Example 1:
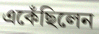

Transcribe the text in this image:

একেঁছিলেন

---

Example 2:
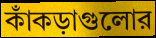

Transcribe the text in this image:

কাঁকড়াগুলোর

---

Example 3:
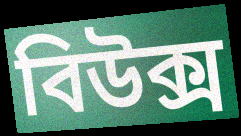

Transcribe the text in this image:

বিউক্স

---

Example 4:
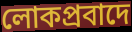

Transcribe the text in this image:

লোকপ্রবাদে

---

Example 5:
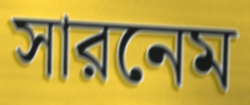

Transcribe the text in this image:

সারনেম